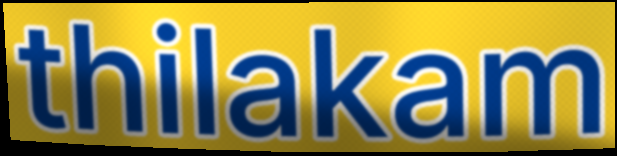
thilakam